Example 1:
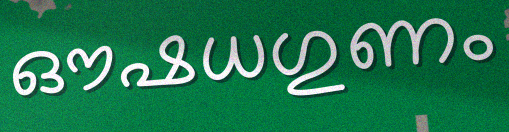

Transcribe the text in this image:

ഔഷധഗുണം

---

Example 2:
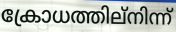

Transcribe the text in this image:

ക്രോധത്തില്നിന്ന്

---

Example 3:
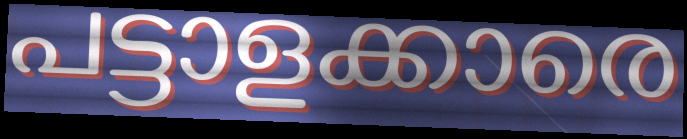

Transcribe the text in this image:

പട്ടാളക്കാരെ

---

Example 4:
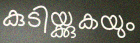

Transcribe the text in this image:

കുടിയ്ക്കുകയും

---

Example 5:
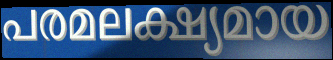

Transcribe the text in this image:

പരമലക്ഷ്യമായ